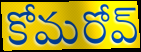
కోమరోవ్